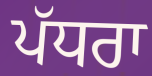
ਪੱਧਰਾ